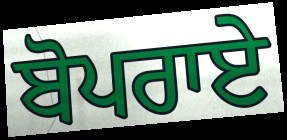
ਬੋਪਰਾਏ